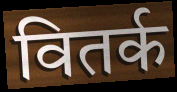
वितर्क